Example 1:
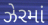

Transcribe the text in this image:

ઝેરમાં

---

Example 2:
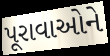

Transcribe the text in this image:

પૂરાવાઓને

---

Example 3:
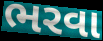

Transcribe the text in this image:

ભરવા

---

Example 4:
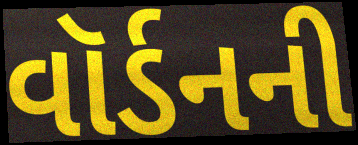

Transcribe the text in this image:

વૉર્ડનની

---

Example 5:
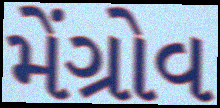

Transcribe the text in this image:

મેંગ્રોવ